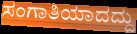
ಸಂಗಾತಿಯಾದದ್ದು